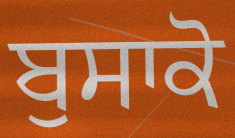
ਬੁਸਾਕੋ